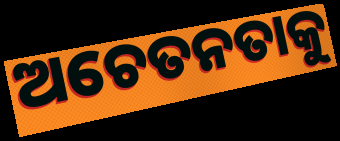
ଅଚେତନତାକୁ